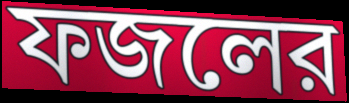
ফজলের